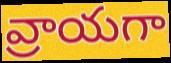
వ్రాయగా